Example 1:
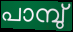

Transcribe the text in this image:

പാമ്പു്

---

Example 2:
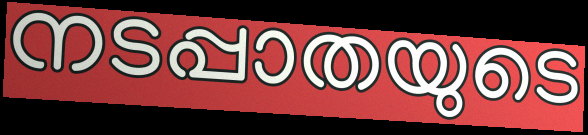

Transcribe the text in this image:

നടപ്പാതയുടെ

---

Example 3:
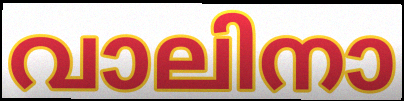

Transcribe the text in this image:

വാലിനാ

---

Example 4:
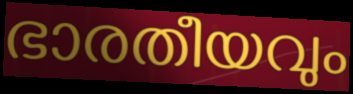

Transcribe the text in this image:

ഭാരതീയവും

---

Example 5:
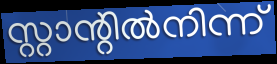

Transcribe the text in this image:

സ്റ്റാന്റിൽനിന്ന്